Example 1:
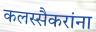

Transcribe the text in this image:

कलस्सैकरांना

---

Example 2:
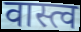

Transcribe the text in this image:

वास्त्व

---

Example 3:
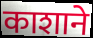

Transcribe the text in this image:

काशाने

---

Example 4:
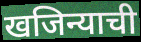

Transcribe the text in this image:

खजिन्याची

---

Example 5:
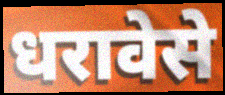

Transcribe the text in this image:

धरावेसे